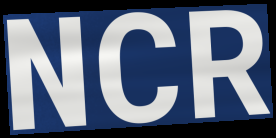
NCR